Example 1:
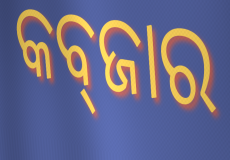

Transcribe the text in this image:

କବ୍‌ଜାର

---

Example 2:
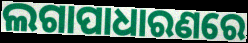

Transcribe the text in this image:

ଲଗାପାଧାରଣରେ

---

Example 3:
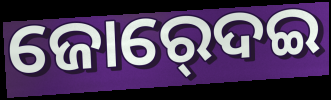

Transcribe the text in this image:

ଜୋର୍‍ଦେଇ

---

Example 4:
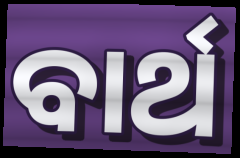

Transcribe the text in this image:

ବାର୍ଥ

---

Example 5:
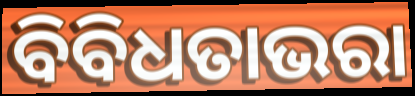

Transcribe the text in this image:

ବିବିଧତାଭରା